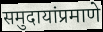
समुदायांप्रमाणे